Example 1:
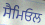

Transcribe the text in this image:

ਸੈਮਿਓਲ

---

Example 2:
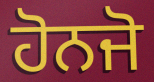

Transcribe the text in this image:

ਹੋਨਜੋ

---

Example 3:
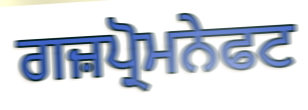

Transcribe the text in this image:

ਗਜ਼ਪ੍ਰੋਮਨੇਫਟ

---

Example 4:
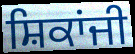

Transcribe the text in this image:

ਸ਼ਿਕਾਂਜੀ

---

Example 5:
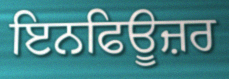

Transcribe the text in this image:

ਇਨਫਿਊਜ਼ਰ